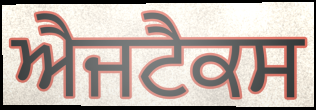
ਐਜਟੈਕਸ